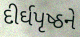
દીર્ઘપૃષ્ઠને